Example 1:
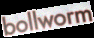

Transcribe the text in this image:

bollworm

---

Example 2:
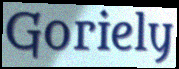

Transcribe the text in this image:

Goriely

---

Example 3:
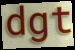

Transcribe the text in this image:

dgt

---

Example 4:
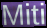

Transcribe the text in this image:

Miti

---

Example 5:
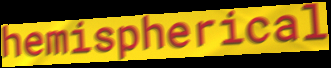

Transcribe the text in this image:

hemispherical